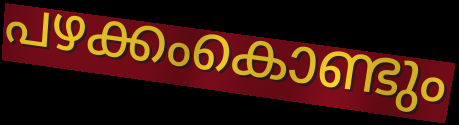
പഴക്കംകൊണ്ടും